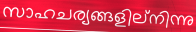
സാഹചര്യങ്ങളില്നിന്നു